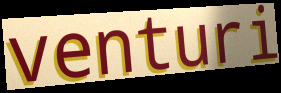
venturi